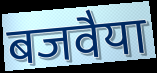
बजवैया